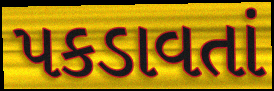
પકડાવતાં